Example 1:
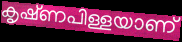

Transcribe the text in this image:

കൃഷ്‌ണപിള്ളയാണ്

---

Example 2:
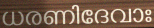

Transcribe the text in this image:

ധരണിദേവാഃ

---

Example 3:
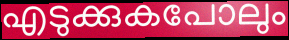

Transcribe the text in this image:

എടുക്കുകപോലും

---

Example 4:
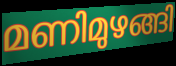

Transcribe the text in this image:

മണിമുഴങ്ങി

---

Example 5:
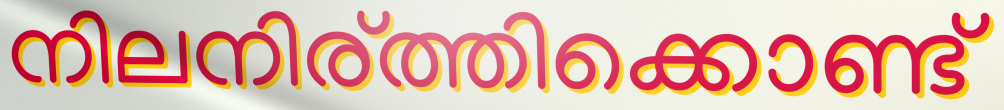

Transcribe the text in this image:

നിലനിര്ത്തിക്കൊണ്ട്